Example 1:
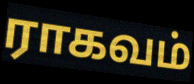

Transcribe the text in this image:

ராகவம்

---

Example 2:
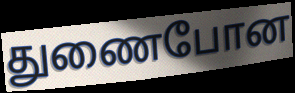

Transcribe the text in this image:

துணைபோன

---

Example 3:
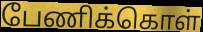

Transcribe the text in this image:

பேணிக்கொள்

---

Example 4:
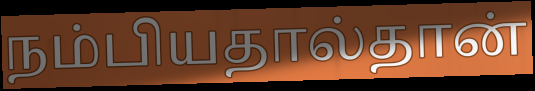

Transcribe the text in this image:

நம்பியதால்தான்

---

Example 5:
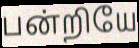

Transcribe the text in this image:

பன்றியே